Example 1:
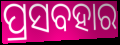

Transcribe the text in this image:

ପ୍ରସବହାର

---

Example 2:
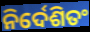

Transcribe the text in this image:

ନିର୍ଦେଶିତଂ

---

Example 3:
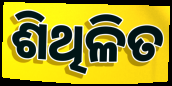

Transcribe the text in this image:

ଶିଥିଳିତ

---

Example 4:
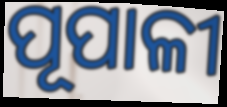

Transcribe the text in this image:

ପୂପାଳୀ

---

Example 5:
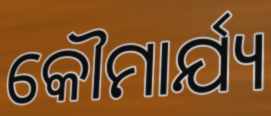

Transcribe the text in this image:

କୌମାର୍ଯ୍ୟ